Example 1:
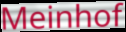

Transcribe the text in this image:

Meinhof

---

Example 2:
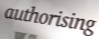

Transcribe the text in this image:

authorising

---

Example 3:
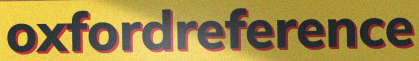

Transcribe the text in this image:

oxfordreference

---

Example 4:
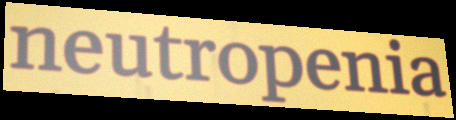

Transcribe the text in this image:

neutropenia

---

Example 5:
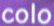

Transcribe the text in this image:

colo